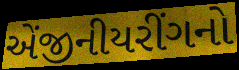
એંજીનીયરીંગનો